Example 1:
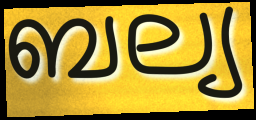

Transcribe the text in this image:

ബല്യ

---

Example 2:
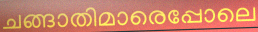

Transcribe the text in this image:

ചങ്ങാതിമാരെപ്പോലെ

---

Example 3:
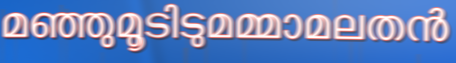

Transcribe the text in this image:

മഞ്ഞുമൂടിടുമമ്മാമലതൻ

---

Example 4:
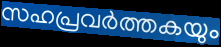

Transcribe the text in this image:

സഹപ്രവർത്തകയും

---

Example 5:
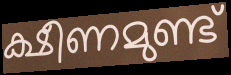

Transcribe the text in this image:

ക്ഷീണമുണ്ട്